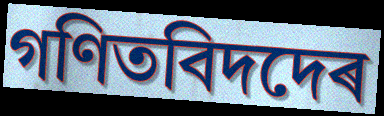
গণিতবিদদেৰ